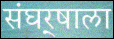
संघर्षाला